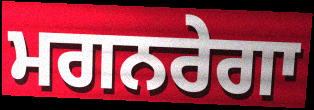
ਮਗਨਰੇਗਾ